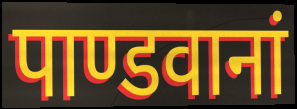
पाण्डवानां